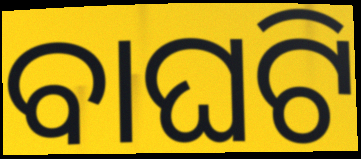
ବାଘଟି